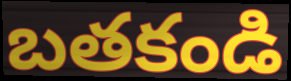
బతకండి